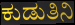
ಕುಡುತಿನಿ